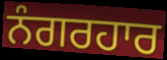
ਨੰਗਰਹਾਰ